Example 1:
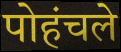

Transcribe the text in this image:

पोहंचले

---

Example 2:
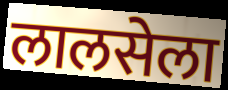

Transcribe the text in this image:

लालसेला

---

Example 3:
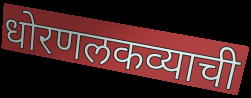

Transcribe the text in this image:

धोरणलकव्याची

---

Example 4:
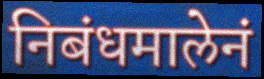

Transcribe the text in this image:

निबंधमालेनं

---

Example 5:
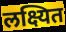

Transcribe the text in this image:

लक्ष्यित